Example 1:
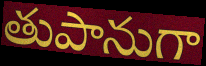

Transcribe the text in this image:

తుపానుగా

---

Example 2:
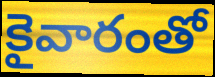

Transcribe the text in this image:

కైవారంతో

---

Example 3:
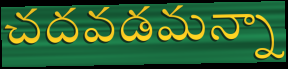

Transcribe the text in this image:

చదవడమన్నా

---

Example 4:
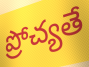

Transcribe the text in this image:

ప్రోచ్యతే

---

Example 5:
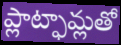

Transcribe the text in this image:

ప్లాట్ఫామ్లతో